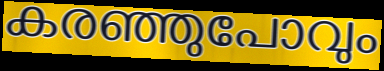
കരഞ്ഞുപോവും